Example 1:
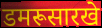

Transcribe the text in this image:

डमरूसारखे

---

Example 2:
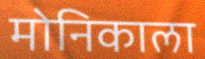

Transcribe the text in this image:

मोनिकाला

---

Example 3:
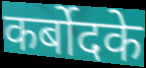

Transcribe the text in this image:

कर्बोदके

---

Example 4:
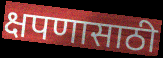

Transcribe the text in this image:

क्षपणासाठी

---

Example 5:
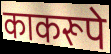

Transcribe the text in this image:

काकरूपे